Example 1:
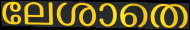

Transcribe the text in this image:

ലേശാതെ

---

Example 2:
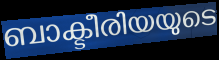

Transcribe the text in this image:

ബാക്ടീരിയയുടെ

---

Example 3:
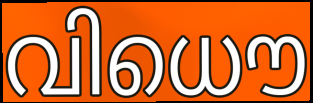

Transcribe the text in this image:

വിധൌ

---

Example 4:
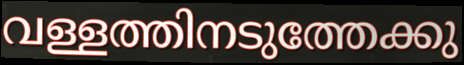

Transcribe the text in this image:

വള്ളത്തിനടുത്തേക്കു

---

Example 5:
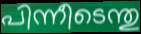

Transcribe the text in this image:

പിന്നീടെന്തു